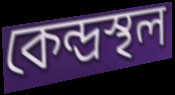
কেন্দ্ৰস্থল